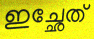
ഇച്ഛേത്